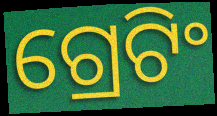
ଗ୍ରେଟିଂ